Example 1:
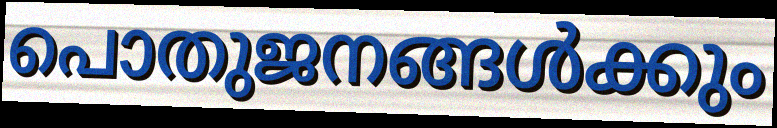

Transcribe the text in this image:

പൊതുജനങ്ങൾക്കും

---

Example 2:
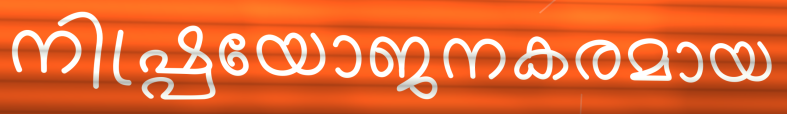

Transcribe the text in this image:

നിഷ്പ്രയോജനകരമായ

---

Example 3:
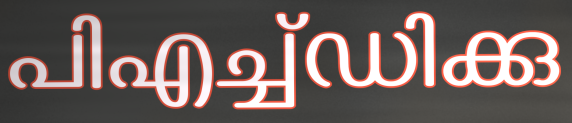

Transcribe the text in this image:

പിഎച്ച്ഡിക്കു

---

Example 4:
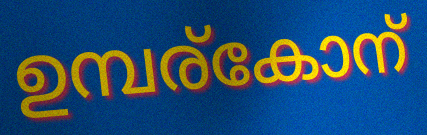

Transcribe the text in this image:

ഉമ്പര്കോന്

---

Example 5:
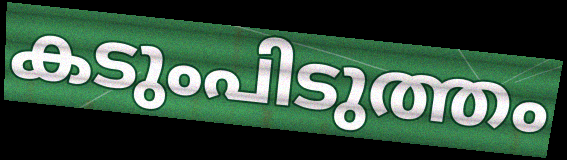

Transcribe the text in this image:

കടുംപിടുത്തം